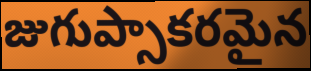
జుగుప్సాకరమైన